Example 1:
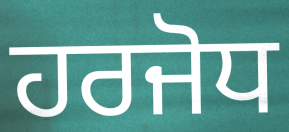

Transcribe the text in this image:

ਹਰਜੋਧ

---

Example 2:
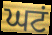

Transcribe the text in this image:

ਘਟਂ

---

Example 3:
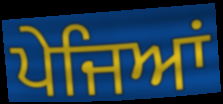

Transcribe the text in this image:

ਪੇਜਿਆਂ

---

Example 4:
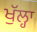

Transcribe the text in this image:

ਖੁੱਲ੍ਹਾ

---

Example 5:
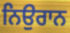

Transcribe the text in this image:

ਨਿਉਰਾਨ